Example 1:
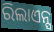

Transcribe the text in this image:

ରିଲାଏନ୍ସ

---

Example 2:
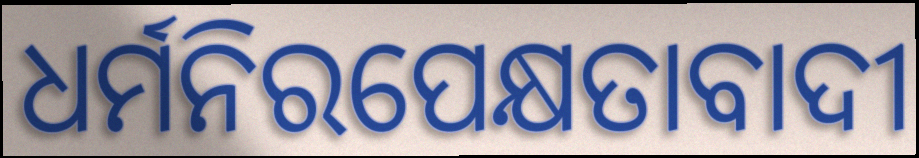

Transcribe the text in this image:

ଧର୍ମନିରପେକ୍ଷତାବାଦୀ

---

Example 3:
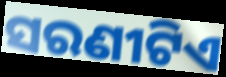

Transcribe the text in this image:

ସରଣୀଟିଏ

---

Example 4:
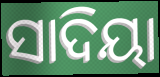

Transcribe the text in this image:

ସାଦିୟା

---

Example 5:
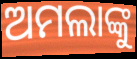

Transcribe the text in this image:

ଅମଲାଙ୍କୁ